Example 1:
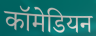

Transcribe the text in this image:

कॉमेडियन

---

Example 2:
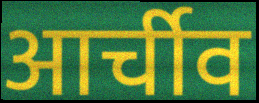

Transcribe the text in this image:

आर्चीव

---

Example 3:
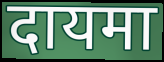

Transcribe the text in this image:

दायमा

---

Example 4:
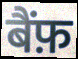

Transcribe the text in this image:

बैंफ़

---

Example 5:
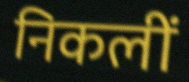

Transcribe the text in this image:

निकलीं